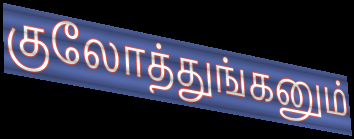
குலோத்துங்கனும்